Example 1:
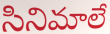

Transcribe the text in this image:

సినిమాలే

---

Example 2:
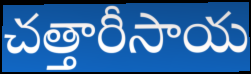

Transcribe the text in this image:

చత్తారీసాయ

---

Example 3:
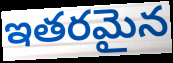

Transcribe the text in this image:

ఇతరమైన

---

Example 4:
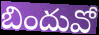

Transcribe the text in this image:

బిందువో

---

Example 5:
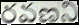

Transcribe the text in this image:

రవణని